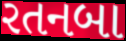
રતનબા